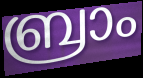
ബ്രാം